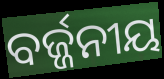
ବର୍ଜ୍ଜନୀୟ